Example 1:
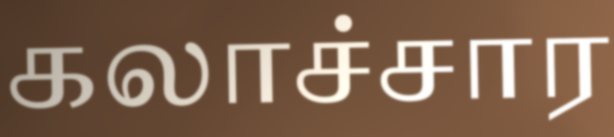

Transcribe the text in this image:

கலாச்சார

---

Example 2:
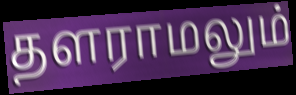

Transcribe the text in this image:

தளராமலும்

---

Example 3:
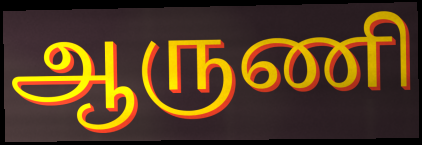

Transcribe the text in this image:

ஆருணி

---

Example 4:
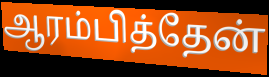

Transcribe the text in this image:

ஆரம்பித்தேன்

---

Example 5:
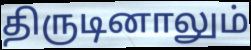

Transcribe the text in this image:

திருடினாலும்